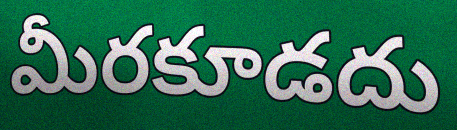
మీరకూడదు